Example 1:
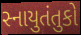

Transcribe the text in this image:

સ્નાયુતંતુકો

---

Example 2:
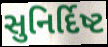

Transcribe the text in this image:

સુનિર્દિષ્ટ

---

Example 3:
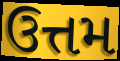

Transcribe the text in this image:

ઉત્તમ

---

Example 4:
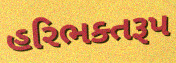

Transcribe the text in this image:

હરિભક્તરૂપ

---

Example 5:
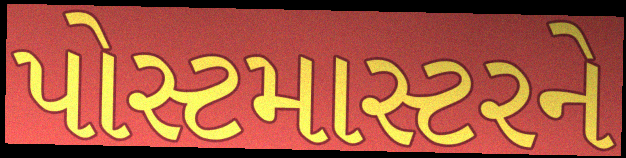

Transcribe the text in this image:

પોસ્ટમાસ્ટરને